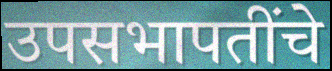
उपसभापतींचे